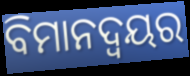
ବିମାନଦ୍ବୟର